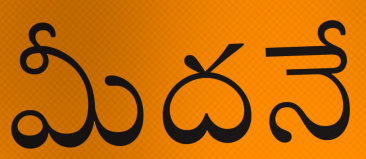
మీదనే